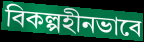
বিকল্পহীনভাবে